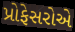
પ્રોફેસરોએ